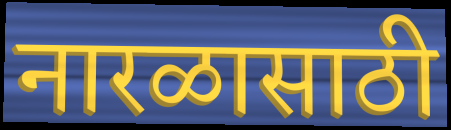
नारळासाठी